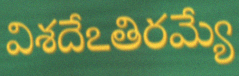
విశదేఽతిరమ్యే